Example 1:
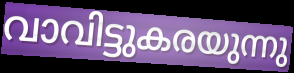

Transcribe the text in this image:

വാവിട്ടുകരയുന്നു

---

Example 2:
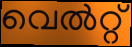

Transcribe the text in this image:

വെൽറ്റ്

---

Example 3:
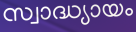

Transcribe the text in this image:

സ്വാദ്ധ്യായം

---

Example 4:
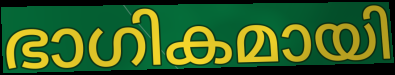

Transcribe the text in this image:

ഭാഗികമായി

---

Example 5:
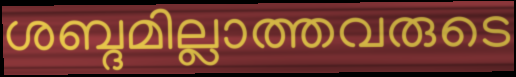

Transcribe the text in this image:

ശബ്ദമില്ലാത്തവരുടെ